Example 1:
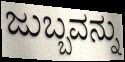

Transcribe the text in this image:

ಜುಬ್ಬವನ್ನು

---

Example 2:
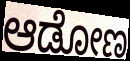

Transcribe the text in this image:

ಆಡೋಣ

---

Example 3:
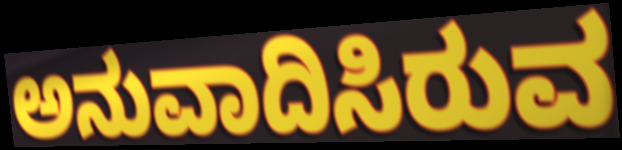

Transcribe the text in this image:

ಅನುವಾದಿಸಿರುವ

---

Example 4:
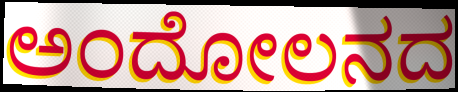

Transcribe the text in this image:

ಅಂದೋಲನದ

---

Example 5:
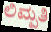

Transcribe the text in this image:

ಲಿಮ್ಪತಿ